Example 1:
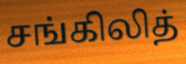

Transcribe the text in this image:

சங்கிலித்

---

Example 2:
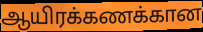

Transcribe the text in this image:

ஆயிரக்கணக்கான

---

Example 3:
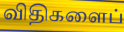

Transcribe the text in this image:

விதிகளைப்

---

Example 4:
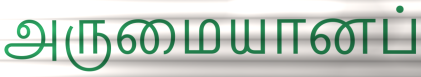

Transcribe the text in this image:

அருமையானப்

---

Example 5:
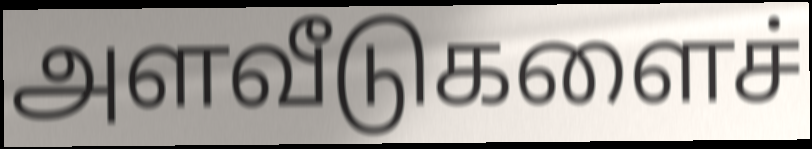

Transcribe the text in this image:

அளவீடுகளைச்